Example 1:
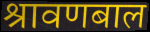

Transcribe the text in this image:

श्रावणबाल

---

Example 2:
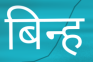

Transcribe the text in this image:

बिन्ह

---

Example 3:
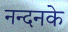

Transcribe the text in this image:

नन्दनके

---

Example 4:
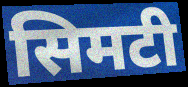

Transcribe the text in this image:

सिमटी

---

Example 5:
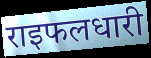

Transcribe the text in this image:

राइफलधारी